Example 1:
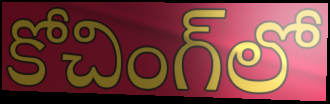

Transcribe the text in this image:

కోచింగ్‌లో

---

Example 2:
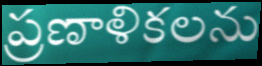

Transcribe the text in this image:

ప్రణాళికలను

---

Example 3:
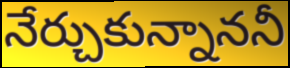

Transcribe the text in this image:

నేర్చుకున్నాననీ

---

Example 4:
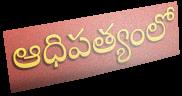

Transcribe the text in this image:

ఆధిపత్యంలో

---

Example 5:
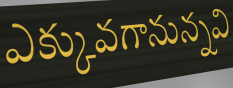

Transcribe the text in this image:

ఎక్కువగానున్నవి